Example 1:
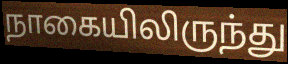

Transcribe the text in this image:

நாகையிலிருந்து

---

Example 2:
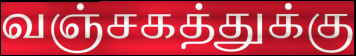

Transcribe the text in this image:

வஞ்சகத்துக்கு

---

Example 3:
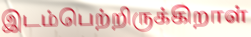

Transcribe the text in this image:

இடம்பெற்றிருக்கிறாள்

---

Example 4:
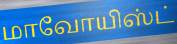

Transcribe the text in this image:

மாவோயிஸ்ட்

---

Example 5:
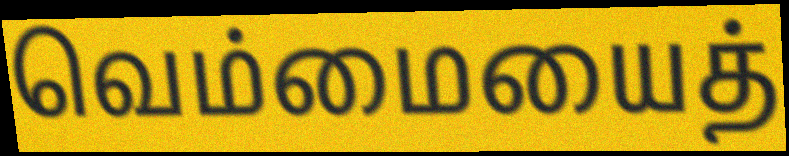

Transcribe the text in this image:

வெம்மையைத்